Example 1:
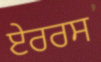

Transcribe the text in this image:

ਏਰਰਸ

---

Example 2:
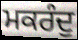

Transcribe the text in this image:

ਮਕਰੰਦੁ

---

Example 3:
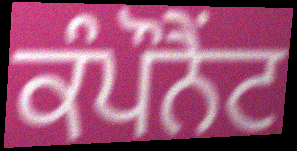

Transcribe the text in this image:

ਕੰਪੌਨੈਂਟ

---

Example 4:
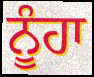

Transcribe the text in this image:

ਨੂੰਹਾ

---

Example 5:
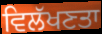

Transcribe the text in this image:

ਵਿਲੱਖਣਤਾ